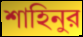
শাহিনুর